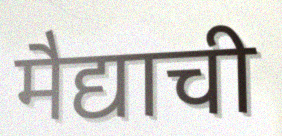
मैद्याची